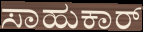
ಸಾಹುಕಾರ್